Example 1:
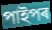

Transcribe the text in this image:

পাইপৰ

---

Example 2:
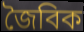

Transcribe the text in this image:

জৈবিক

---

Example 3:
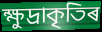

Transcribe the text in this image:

ক্ষুদ্ৰাকৃতিৰ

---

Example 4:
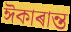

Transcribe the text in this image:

ঈকাৰান্ত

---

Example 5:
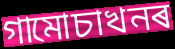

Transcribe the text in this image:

গামোচাখনৰ